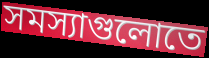
সমস্যাগুলোতে